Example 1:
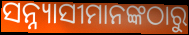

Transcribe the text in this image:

ସନ୍ନ୍ୟାସୀମାନଙ୍କଠାରୁ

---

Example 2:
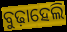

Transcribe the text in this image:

ବୁଢ଼ାହେଲି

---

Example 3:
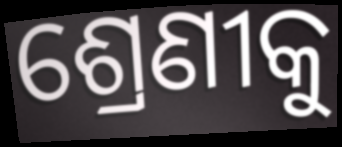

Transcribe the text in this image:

ଶ୍ରେଣୀକୁ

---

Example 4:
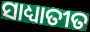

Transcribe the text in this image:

ସାଧ୍ୟାତୀତ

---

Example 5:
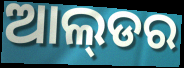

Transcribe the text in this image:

ଆଲ୍‌ଡର